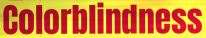
Colorblindness